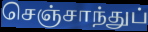
செஞ்சாந்துப்